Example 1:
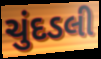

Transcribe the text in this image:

ચુંદડલી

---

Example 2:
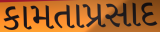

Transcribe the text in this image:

કામતાપ્રસાદ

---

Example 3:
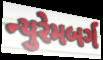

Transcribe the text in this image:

ન્યુરેમબર્ગ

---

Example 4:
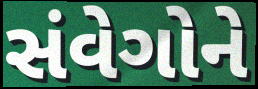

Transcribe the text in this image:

સંવેગોને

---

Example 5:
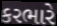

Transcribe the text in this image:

કરભારે